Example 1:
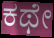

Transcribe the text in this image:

ಕಥೇ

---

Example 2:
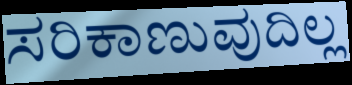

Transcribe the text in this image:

ಸರಿಕಾಣುವುದಿಲ್ಲ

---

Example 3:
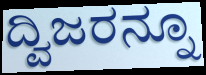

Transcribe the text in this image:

ದ್ವಿಜರನ್ನೂ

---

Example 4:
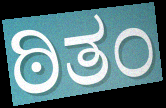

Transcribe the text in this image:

ಠಿತಂ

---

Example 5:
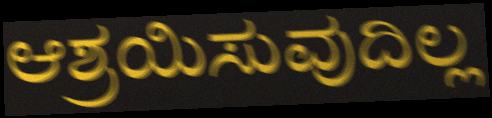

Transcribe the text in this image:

ಆಶ್ರಯಿಸುವುದಿಲ್ಲ